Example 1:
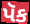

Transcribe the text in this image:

પૅક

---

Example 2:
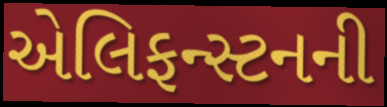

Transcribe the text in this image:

એલિફન્સ્ટનની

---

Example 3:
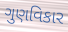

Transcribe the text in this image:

ગુણવિકાર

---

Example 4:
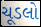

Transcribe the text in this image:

ચૂડલો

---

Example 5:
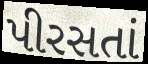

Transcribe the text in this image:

પીરસતાં